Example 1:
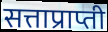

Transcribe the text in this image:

सत्ताप्राप्ती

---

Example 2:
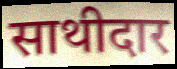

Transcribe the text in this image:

साथीदार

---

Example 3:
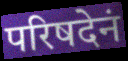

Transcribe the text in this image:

परिषदेनं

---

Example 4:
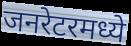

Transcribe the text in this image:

जनरेटरमध्ये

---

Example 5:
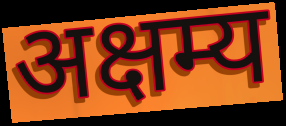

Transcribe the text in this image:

अक्षम्य